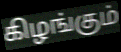
கிழங்கும்